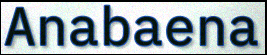
Anabaena